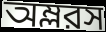
অম্লরস